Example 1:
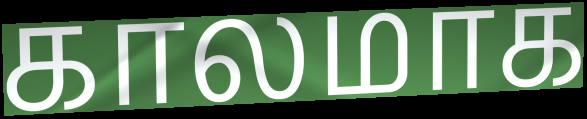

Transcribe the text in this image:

காலமாக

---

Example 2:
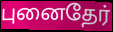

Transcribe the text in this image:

புனைதேர்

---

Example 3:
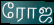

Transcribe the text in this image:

ரோஜ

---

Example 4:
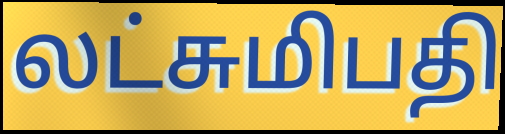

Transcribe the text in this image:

லட்சுமிபதி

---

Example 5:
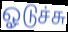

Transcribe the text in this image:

ஓடுச்சு